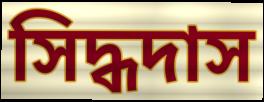
সিদ্ধদাস